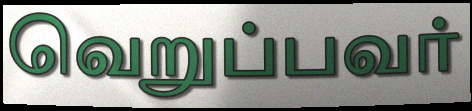
வெறுப்பவர்